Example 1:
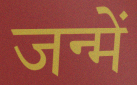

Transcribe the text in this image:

जन्में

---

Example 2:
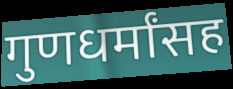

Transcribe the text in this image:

गुणधर्मांसह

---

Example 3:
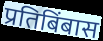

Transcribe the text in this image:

प्रतिबिंबास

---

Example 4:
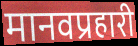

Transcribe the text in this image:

मानवप्रहारी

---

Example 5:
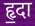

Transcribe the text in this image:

हृ॒दा